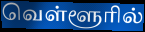
வெள்ளூரில்